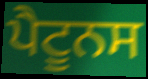
ਪੈਟੂਨਸ